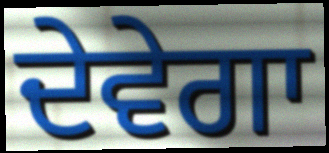
ਦੇਵੇਗਾ